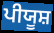
ਪੀਯੂਸ਼